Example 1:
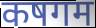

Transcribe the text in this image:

कषगम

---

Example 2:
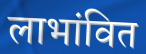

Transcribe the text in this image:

लाभांवित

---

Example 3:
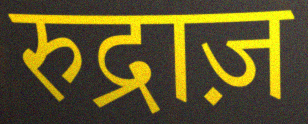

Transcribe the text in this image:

रुद्राज़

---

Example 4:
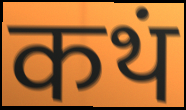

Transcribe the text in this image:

कथं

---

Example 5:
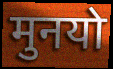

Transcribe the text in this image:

मुनयो